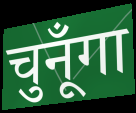
चुनूँगा